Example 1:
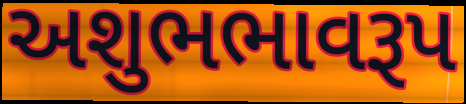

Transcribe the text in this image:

અશુભભાવરૂપ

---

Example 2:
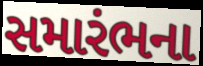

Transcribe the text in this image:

સમારંભના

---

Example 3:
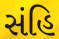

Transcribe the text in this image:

સંહિ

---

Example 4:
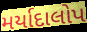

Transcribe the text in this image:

મર્યાદાલોપ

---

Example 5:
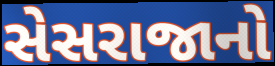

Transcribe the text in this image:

સેસરાજાનો